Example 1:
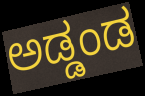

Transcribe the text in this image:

ಅಡ್ಡಂಡ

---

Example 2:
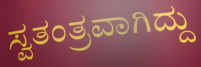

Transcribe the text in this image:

ಸ್ವತಂತ್ರವಾಗಿದ್ದು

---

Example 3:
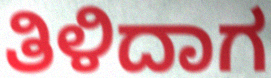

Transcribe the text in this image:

ತಿಳಿದಾಗ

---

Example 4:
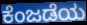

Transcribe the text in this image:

ಕೆಂಜಡೆಯ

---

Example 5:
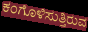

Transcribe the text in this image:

ಕಂಗೊಳಿಸುತ್ತಿರುವ